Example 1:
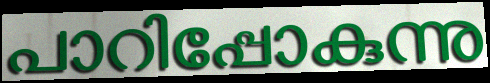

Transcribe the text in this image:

പാറിപ്പോകുന്നു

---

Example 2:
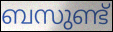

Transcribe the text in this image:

ബസുണ്ട്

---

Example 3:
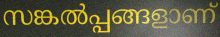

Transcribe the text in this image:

സങ്കൽപ്പങ്ങളാണ്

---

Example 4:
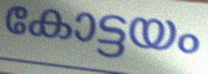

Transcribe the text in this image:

കോട്ടയം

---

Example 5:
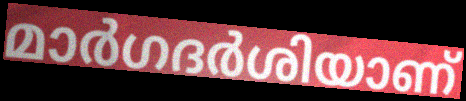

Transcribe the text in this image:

മാർഗദർശിയാണ്